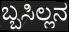
ಬ್ಬಸಿಲ್ಲನ